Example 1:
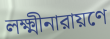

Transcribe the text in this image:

লক্ষ্মীনারায়ণে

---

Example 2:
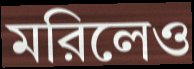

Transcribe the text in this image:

মরিলেও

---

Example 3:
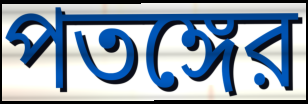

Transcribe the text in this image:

পতঙ্গের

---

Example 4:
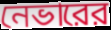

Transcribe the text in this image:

নেভারের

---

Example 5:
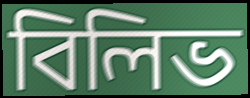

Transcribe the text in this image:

বিলিভ